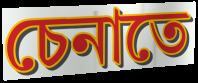
চেনাতে